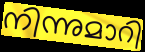
നിന്നുമാറി